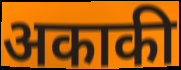
अकाकी